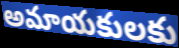
అమాయకులకు